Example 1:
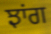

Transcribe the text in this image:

ਝਾਂਗ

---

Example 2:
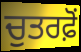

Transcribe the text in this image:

ਚੁਤਰਫ਼ੋਂ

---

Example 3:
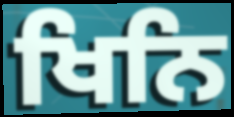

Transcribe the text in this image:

ਖਿਨਿ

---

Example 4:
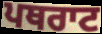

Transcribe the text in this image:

ਪਥਰਾਟ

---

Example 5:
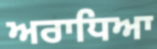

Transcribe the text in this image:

ਅਰਾਧਿਆ